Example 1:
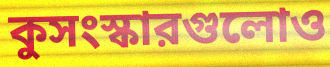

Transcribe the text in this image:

কুসংস্কারগুলোও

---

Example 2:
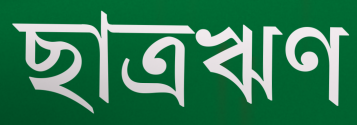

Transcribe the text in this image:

ছাত্রঋণ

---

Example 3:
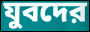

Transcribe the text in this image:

যুবদের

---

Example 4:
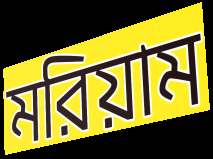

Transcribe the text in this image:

মরিয়াম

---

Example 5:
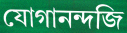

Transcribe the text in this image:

যোগানন্দজি